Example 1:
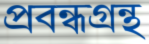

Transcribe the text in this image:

প্ৰবন্ধগ্ৰন্থ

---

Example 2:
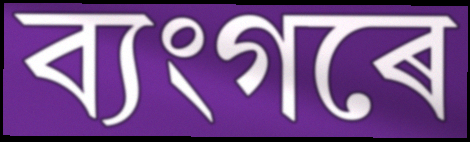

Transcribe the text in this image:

ব্যংগৰে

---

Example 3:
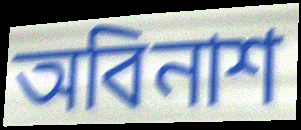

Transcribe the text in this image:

অবিনাশ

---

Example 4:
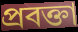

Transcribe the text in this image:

প্ৰবক্তা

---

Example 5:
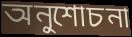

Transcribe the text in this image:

অনুশোচনা